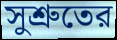
সুশ্রুতের